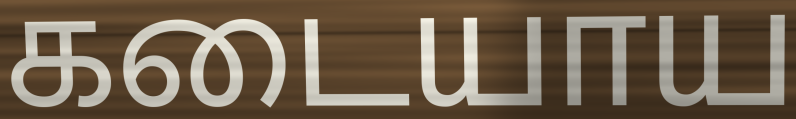
கடையாய